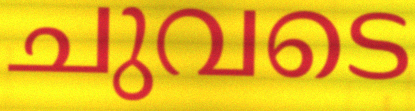
ചുവടെ